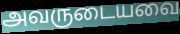
அவருடையவை